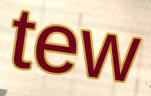
tew